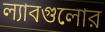
ল্যাবগুলোর